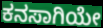
ಕನಸಾಗಿಯೇ